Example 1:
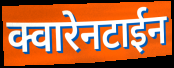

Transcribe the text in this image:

क्वारेनटाईन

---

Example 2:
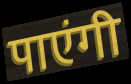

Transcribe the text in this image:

पाएंगी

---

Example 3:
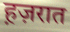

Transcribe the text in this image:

ह़ज़रात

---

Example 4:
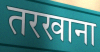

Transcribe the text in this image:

तरखाना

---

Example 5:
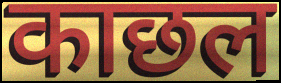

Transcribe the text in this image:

काछल